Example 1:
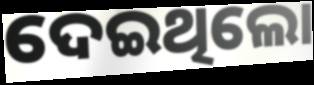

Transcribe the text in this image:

ଦେଇଥିଲୋ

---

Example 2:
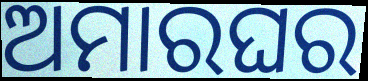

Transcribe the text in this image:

ଅମାରଘର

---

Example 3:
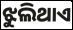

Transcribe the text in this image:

ଝୁଲିଥାଏ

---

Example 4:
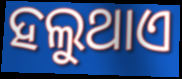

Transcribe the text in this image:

ହଲୁଥାଏ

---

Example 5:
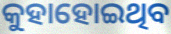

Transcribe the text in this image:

କୁହାହୋଇଥିବ